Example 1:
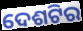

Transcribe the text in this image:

ଦେଶଟିର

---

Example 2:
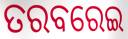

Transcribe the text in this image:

ତରବରେଇ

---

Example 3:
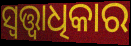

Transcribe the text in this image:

ସ୍ୱତ୍ତ୍ୱାଧିକାର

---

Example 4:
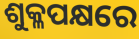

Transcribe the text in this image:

ଶୁକ୍ଳପକ୍ଷରେ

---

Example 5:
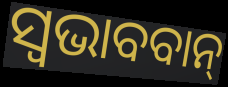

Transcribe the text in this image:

ସ୍ଵଭାବବାନ୍